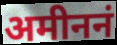
अमीननं